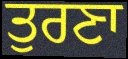
ਤੁਰਣਾ